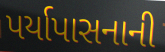
પર્યાપાસનાની